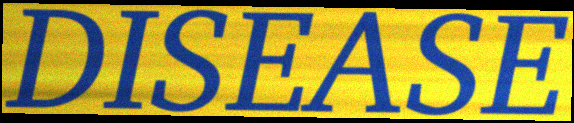
DISEASE